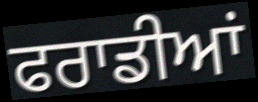
ਫਰਾਡੀਆਂ